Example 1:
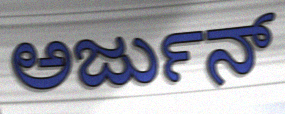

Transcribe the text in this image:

ಅರ್ಜುನ್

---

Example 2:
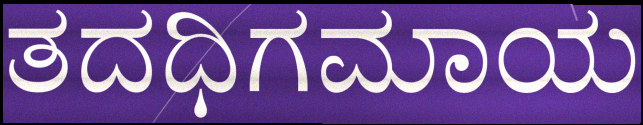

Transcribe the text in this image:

ತದಧಿಗಮಾಯ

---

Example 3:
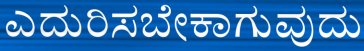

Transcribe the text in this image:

ಎದುರಿಸಬೇಕಾಗುವುದು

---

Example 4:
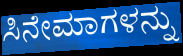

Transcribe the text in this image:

ಸಿನೇಮಾಗಳನ್ನು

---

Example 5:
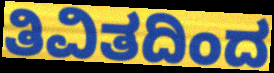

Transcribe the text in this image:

ತಿವಿತದಿಂದ